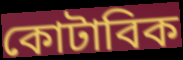
কোটাবিক